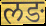
लङ